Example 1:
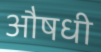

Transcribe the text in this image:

औषधी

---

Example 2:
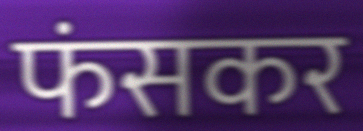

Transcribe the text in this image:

फंसकर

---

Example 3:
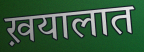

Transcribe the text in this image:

ख़यालात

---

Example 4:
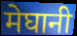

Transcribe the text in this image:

मेघानी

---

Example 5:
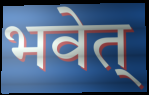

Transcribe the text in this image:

भवेत्